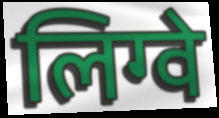
लिग्वे